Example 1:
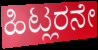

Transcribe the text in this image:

ಹಿಟ್ಲರನೇ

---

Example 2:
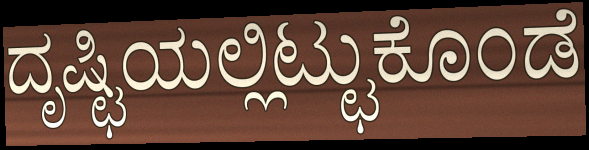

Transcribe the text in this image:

ದೃಷ್ಟಿಯಲ್ಲಿಟ್ಟುಕೊಂಡೆ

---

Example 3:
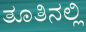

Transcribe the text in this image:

ತೂತಿನಲ್ಲಿ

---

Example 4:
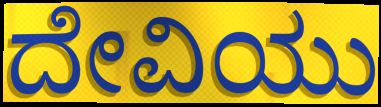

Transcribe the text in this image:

ದೇವಿಯು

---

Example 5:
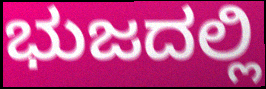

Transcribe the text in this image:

ಭುಜದಲ್ಲಿ